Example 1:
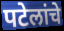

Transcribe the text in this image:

पटेलांचे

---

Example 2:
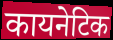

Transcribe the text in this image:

कायनेटिक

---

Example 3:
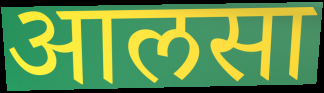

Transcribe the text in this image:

आलसा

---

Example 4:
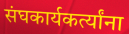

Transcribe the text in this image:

संघकार्यकर्त्यांना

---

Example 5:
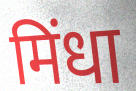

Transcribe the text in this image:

मिंधा